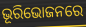
ଭୂରିଭୋଜନରେ